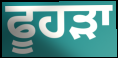
ਫੂਹੜਾ